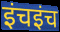
इंचइंच